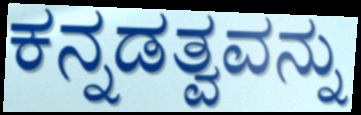
ಕನ್ನಡತ್ವವನ್ನು